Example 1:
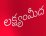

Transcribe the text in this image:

లక్ష్యంమీద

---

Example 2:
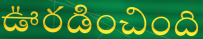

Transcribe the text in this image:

ఊరడించింది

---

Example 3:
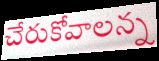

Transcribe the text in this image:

చేరుకోవాలన్న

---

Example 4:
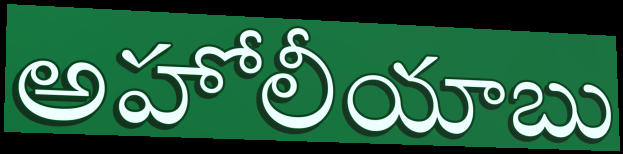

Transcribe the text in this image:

అహోలీయాబు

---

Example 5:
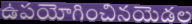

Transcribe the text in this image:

ఉపయోగించినయెడల